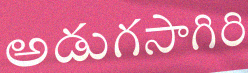
అడుగసాగిరి